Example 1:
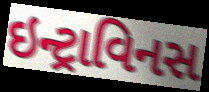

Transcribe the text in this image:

ઇન્ટ્રાવિનસ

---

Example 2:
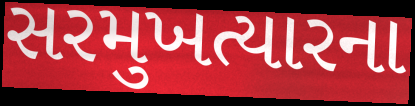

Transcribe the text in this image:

સરમુખત્યારના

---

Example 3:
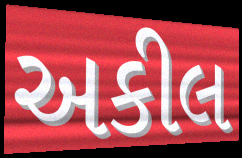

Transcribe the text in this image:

અકીલ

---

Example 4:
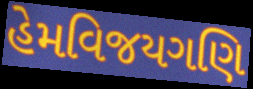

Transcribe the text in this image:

હેમવિજયગણિ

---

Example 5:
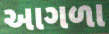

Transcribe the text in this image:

આગળા